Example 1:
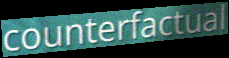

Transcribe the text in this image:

counterfactual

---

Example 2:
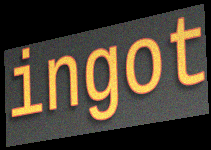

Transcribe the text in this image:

ingot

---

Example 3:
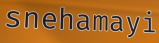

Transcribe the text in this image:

snehamayi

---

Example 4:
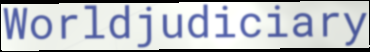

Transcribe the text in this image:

Worldjudiciary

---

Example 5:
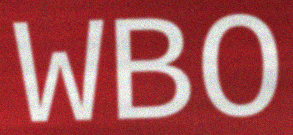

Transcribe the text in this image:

WBO